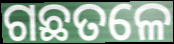
ଗଛତଳେ